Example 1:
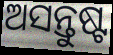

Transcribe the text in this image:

ଅସନ୍ତୁଷ୍ଟ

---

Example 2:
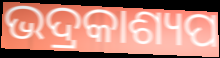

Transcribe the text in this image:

ଭଦ୍ରକାଶ୍ୟପ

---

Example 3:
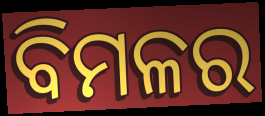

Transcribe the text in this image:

ବିମଳର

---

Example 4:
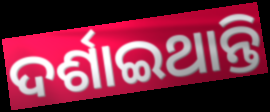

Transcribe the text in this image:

ଦର୍ଶାଇଥାନ୍ତି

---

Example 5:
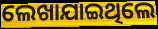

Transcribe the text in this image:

ଲେଖାଯାଇଥିଲେ